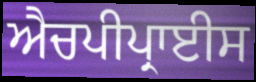
ਐਚਪੀਪ੍ਰਾਈਸ